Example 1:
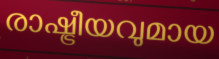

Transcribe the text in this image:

രാഷ്ട്രീയവുമായ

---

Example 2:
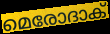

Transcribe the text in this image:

മെരോദാക്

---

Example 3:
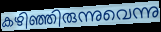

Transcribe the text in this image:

കഴിഞ്ഞിരുന്നുവെന്നു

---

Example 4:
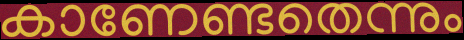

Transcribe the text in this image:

കാണേണ്ടതെന്നും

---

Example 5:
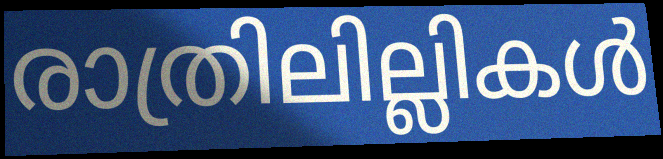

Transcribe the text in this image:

രാത്രിലില്ലികൾ